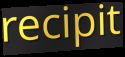
recipit